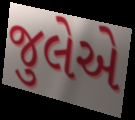
જુલેએ